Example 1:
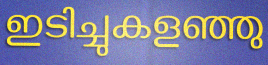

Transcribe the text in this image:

ഇടിച്ചുകളഞ്ഞു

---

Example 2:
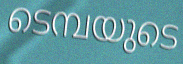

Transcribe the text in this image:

ടെമ്പയുടെ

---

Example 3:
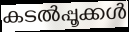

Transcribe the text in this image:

കടൽപ്പൂക്കൾ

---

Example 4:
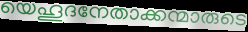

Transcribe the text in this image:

യെഹൂദനേതാക്കന്മാരുടെ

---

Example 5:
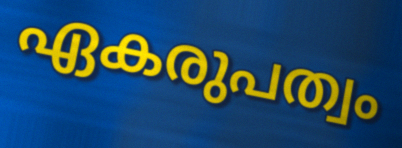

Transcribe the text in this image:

ഏകരുപത്വം